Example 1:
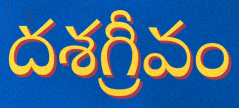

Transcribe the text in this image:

దశగ్రీవం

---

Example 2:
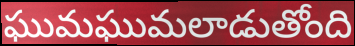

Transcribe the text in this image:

ఘుమఘుమలాడుతోంది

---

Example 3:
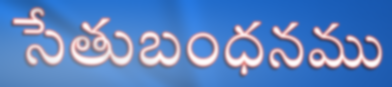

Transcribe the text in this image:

సేతుబంధనము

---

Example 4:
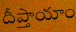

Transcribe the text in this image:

దీప్తాయాం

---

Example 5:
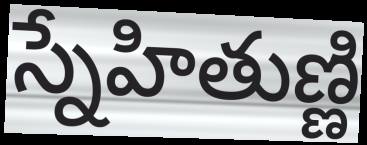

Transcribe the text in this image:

స్నేహితుణ్ణి